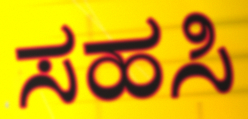
ಸಹಸಿ